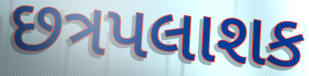
છત્રપલાશક